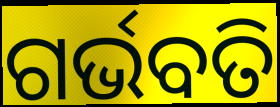
ଗର୍ଭବତି